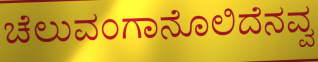
ಚೆಲುವಂಗಾನೊಲಿದೆನವ್ವ